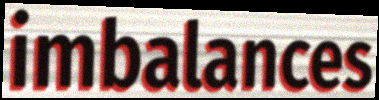
imbalances